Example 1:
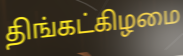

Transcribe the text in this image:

திங்கட்கிழமை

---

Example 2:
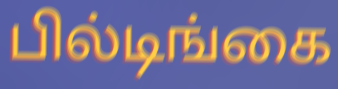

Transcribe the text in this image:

பில்டிங்கை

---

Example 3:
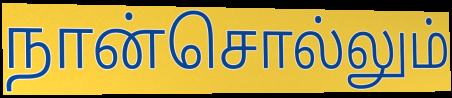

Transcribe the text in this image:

நான்சொல்லும்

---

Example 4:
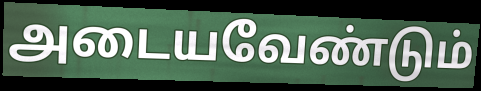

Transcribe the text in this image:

அடையவேண்டும்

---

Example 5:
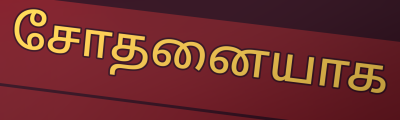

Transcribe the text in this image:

சோதனையாக